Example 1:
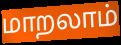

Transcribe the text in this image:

மாறலாம்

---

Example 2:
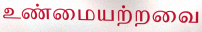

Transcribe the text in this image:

உண்மையற்றவை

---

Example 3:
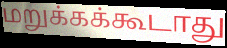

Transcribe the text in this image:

மறுக்கக்கூடாது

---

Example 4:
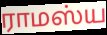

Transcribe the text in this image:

ராமஸ்ய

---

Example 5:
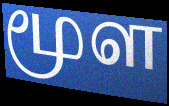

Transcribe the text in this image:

மூள